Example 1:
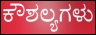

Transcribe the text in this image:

ಕೌಶಲ್ಯಗಳು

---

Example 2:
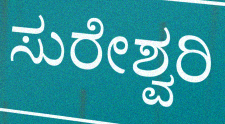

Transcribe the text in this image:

ಸುರೇಶ್ವರಿ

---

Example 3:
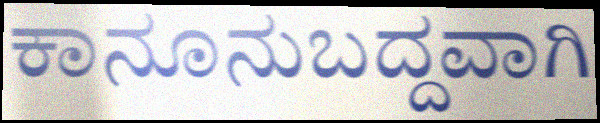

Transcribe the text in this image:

ಕಾನೂನುಬದ್ದವಾಗಿ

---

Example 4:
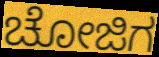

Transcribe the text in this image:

ಚೋಜಿಗ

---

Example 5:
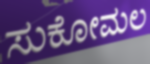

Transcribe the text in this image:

ಸುಕೋಮಲ